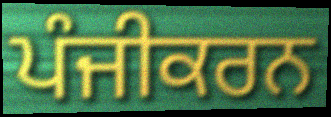
ਪੰਜੀਕਰਨ